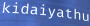
kidaiyathu